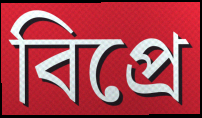
বিপ্রে